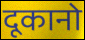
दूकानो